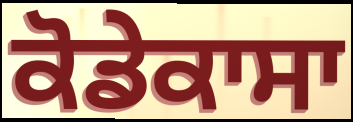
ਕੋਡੇਕਾਸਾ